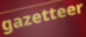
gazetteer